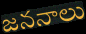
జననాలు